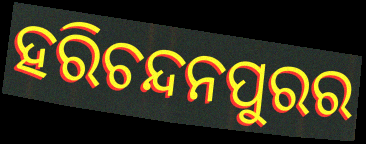
ହରିଚନ୍ଦନପୁରର